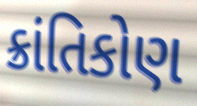
ક્રાંતિકોણ